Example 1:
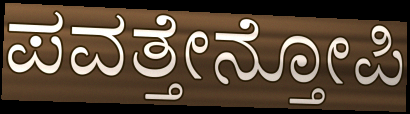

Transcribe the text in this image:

ಪವತ್ತೇನ್ತೋಪಿ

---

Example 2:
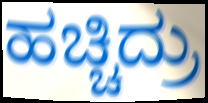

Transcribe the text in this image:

ಹಚ್ಚಿದ್ರು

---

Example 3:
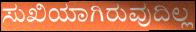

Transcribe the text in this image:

ಸುಖಿಯಾಗಿರುವುದಿಲ್ಲ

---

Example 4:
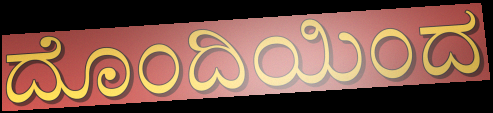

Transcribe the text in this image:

ದೊಂದಿಯಿಂದ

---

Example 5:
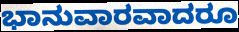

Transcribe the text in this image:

ಭಾನುವಾರವಾದರೂ